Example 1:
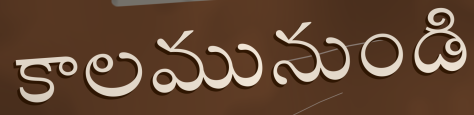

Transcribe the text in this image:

కాలమునుండి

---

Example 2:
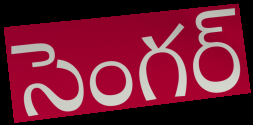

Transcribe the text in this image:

సెంగర్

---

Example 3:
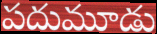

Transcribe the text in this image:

పదుమూడు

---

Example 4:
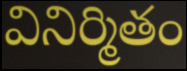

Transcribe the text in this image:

వినిర్మితం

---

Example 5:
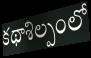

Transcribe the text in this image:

కథాశిల్పంలో